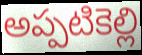
అప్పటికెల్లి